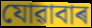
যোৱাবাৰ